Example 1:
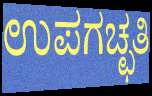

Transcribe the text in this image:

ಉಪಗಚ್ಛತಿ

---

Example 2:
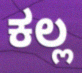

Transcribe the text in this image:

ಕಲ್ಲ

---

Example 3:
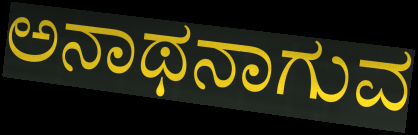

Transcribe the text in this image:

ಅನಾಥನಾಗುವ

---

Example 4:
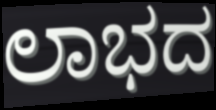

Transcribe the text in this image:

ಲಾಭದ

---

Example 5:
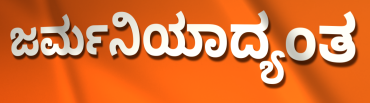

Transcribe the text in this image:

ಜರ್ಮನಿಯಾದ್ಯಂತ